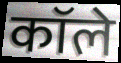
कॉले